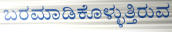
ಬರಮಾಡಿಕೊಳ್ಳುತ್ತಿರುವ